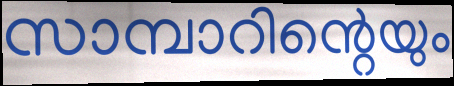
സാമ്പാറിന്റെയും